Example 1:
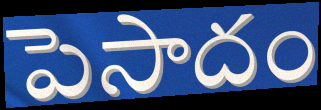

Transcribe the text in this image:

పెసాదం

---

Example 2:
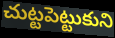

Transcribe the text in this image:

చుట్టపెట్టుకుని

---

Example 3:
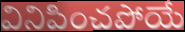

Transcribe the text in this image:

వినిపించపోయే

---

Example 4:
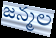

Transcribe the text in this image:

జన్మల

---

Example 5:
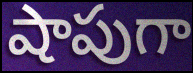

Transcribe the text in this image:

షాపుగా